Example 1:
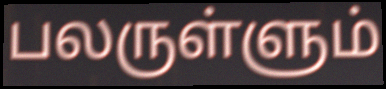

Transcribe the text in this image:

பலருள்ளும்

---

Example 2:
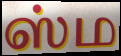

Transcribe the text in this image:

ஸ்ம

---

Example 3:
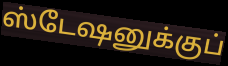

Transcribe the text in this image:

ஸ்டேஷனுக்குப்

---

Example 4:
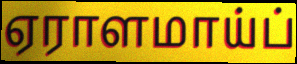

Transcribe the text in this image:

ஏராளமாய்ப்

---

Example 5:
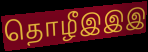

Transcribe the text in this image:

தொழீஇஇஇ